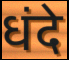
धंदे